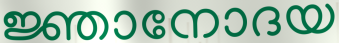
ജ്ഞാനോദയ